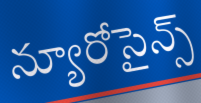
న్యూరోసైన్స్